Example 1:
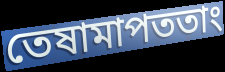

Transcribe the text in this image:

তেষামাপততাং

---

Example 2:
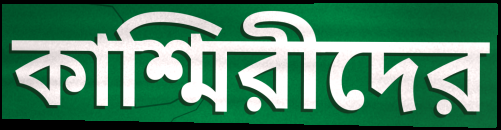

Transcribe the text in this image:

কাশ্মিরীদের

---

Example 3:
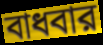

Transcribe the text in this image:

বাধবার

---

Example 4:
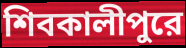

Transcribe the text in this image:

শিবকালীপুরে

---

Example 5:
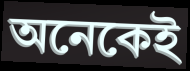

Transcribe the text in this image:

অনেকেই